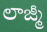
లాజ్మీ